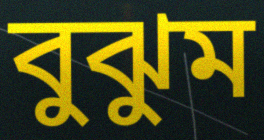
বুঝুম